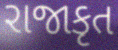
રાજાકૃત